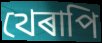
থেৰাপি